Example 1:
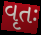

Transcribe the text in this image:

વૃતઃ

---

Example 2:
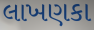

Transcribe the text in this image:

લાખણકા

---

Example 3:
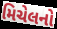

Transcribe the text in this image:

મિચેલનો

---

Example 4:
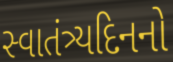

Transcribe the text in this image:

સ્વાતંત્ર્યદિનનો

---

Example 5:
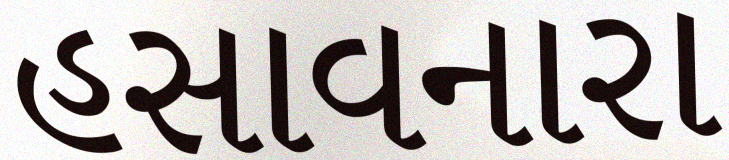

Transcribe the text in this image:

હસાવનારા